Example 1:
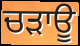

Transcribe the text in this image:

ਚੜਾਊ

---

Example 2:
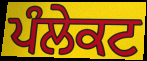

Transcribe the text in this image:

ਪੰਲੇਕਟ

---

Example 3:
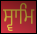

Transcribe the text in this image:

ਸ੍ਵਾਮਿ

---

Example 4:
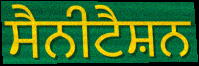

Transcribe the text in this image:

ਸੈਨੀਟੈਸ਼ਨ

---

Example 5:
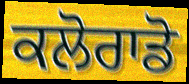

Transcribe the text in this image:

ਕਲੋਰਾਡੋ